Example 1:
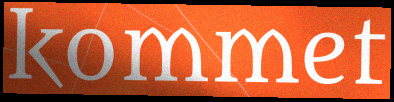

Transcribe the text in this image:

kommet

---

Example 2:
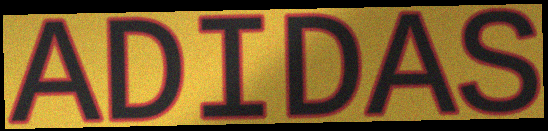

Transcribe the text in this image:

ADIDAS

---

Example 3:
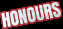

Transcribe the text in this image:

HONOURS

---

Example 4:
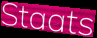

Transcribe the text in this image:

Staats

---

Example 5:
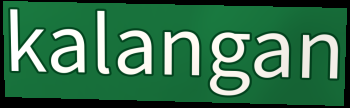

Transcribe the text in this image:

kalangan